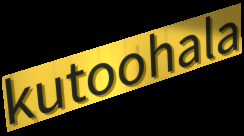
kutoohala